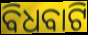
ବିଧବାଟି